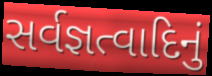
સર્વજ્ઞત્વાદિનું